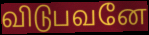
விடுபவனே